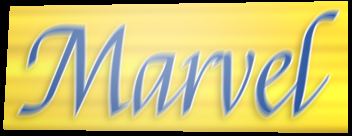
Marvel